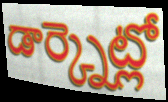
డార్క్నెట్లో